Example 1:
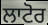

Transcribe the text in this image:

ਲਾਟੋਰ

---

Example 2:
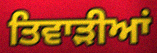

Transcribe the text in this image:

ਤਿਵਾੜੀਆਂ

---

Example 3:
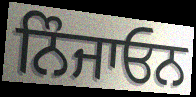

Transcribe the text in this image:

ਨਿੰਜਾਓਨ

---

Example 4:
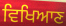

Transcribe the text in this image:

ਵਿਖਿਆਣ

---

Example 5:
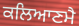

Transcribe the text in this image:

ਕਲਿਆਣਮੈ